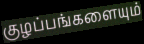
குழப்பங்களையும்